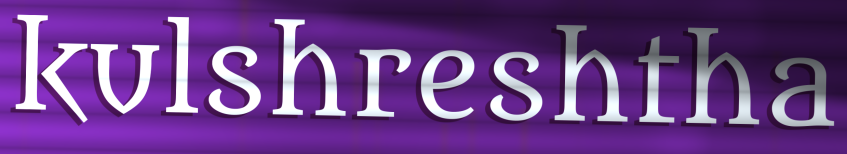
kulshreshtha